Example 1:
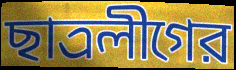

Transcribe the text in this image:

ছাত্রলীগের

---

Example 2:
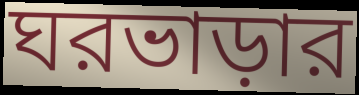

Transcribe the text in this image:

ঘরভাড়ার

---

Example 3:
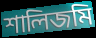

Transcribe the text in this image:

শালিজমি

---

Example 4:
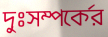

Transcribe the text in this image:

দুঃসম্পর্কের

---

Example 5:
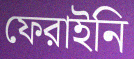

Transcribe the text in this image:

ফেরাইনি